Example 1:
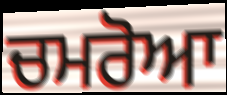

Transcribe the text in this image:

ਚਮਰੋਆ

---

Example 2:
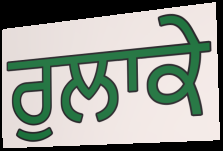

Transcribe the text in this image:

ਰੁਲਾਕੇ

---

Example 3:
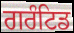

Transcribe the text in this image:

ਗਰੰਟਿਡ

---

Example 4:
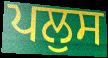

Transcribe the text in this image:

ਪਲੁਸ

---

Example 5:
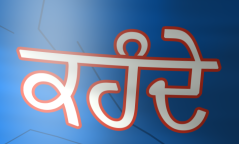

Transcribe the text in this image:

ਕਹੰਦੇ